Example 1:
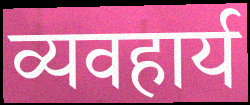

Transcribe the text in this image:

व्यवहार्य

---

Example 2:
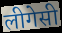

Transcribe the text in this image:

लीगेसी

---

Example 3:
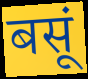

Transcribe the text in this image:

बसूं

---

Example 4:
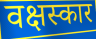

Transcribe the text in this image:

वक्षस्कार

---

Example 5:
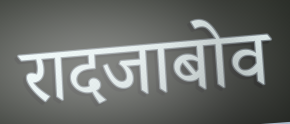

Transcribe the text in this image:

रादजाबोव